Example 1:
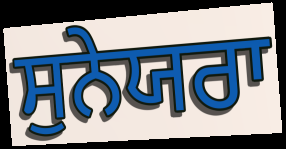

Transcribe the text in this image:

ਸੁਨੇਯਰਾ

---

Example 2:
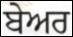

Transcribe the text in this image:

ਬੇਅਰ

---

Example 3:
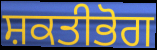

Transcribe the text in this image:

ਸ਼ਕਤੀਭੋਗ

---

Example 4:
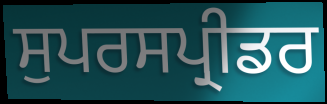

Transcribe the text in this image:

ਸੁਪਰਸਪ੍ਰੀਡਰ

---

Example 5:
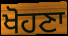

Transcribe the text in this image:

ਖੋਹਣਾ